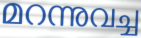
മറന്നുവച്ച